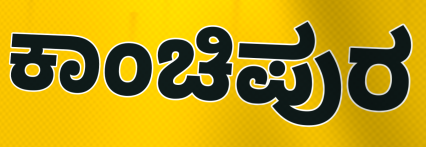
ಕಾಂಚಿಪುರ